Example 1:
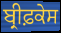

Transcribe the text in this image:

ਬ੍ਰੀਫ਼ਕੇਸ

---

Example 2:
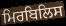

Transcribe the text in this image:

ਮਿਰਬਿਲਿਸ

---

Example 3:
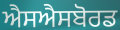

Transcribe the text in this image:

ਐਸਐਸਬੋਰਡ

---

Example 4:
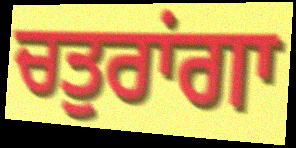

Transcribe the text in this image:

ਚਤੁਰਾਂਗਾ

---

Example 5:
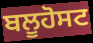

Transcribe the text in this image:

ਬਲੂਹੋਸਟ